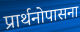
प्रार्थनोपासना